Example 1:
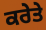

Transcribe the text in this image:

ਕਰੇਤੇ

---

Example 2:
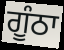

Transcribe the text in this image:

ਗੂੰਠਾ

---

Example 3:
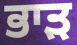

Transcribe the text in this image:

ਭਾੜ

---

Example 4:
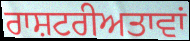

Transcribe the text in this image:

ਰਾਸ਼ਟਰੀਅਤਾਵਾਂ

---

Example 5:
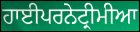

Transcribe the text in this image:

ਹਾਈਪਰਨੇਟ੍ਰੀਮੀਆ